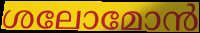
ശലോമോൻ